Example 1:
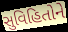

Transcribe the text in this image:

સુવિહિતોને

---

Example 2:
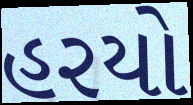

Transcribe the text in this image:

હરયો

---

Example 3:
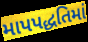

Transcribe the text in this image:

માપપદ્ધતિમાં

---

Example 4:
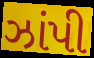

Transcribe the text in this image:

ઝાંપી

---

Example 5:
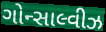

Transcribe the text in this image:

ગોન્સાલ્વીઝ